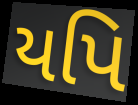
યપિ